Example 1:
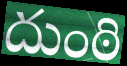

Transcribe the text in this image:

దుంఠి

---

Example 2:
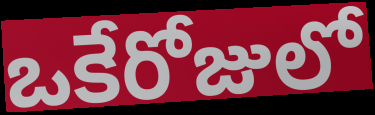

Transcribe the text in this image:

ఒకేరోజులో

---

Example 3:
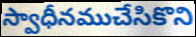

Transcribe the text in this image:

స్వాధీనముచేసికొని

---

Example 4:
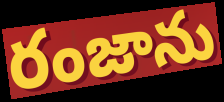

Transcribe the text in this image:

రంజాను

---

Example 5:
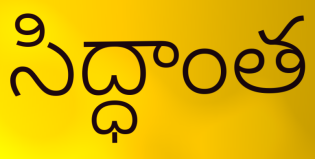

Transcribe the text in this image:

సిద్ధాంత